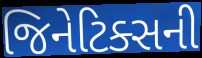
જિનેટિક્સની